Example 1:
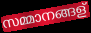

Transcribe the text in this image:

സമ്മാനങ്ങള്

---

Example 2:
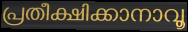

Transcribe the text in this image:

പ്രതീക്ഷിക്കാനാവൂ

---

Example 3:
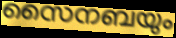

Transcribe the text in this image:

സൈനബയും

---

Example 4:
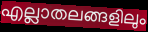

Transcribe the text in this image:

എല്ലാതലങ്ങളിലും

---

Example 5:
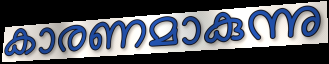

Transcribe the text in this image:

കാരണമാകുന്നു